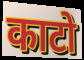
काटो